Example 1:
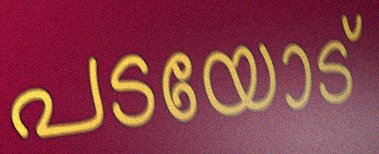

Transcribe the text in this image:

പടയോട്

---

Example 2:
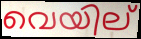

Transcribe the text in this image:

വെയില്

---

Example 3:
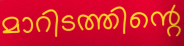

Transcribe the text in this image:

മാറിടത്തിന്റെ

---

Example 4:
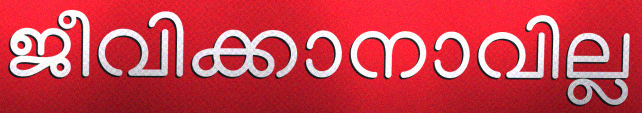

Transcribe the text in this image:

ജീവിക്കാനാവില്ല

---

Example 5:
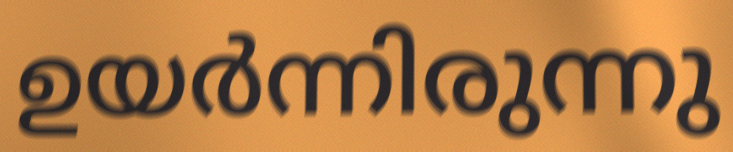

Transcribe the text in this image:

ഉയർന്നിരുന്നു